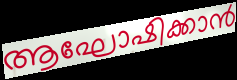
ആഘോഷിക്കാൻ